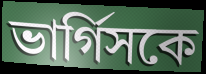
ভার্গিসকে